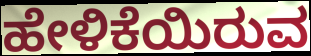
ಹೇಳಿಕೆಯಿರುವ